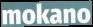
mokano